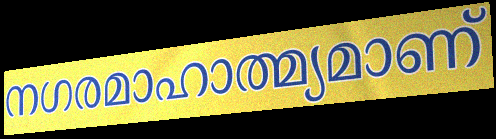
നഗരമാഹാത്മ്യമാണ്